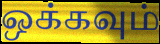
ஒக்கவும்